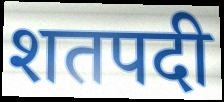
शतपदी